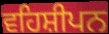
ਵਹਿਸ਼ੀਪਨ